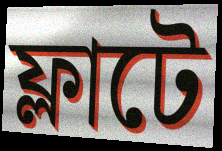
ফ্লাটে